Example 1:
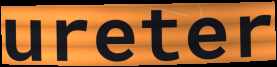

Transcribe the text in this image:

ureter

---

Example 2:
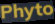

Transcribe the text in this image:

Phyto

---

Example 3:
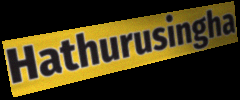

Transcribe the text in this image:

Hathurusingha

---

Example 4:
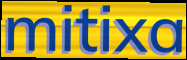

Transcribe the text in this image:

mitixa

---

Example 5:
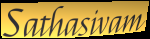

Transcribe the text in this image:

Sathasivam